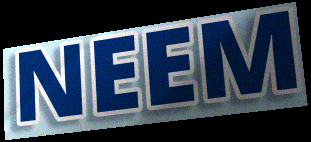
NEEM